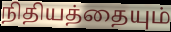
நிதியத்தையும்